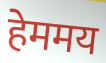
हेममय